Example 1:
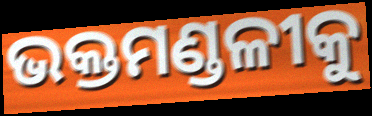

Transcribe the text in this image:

ଭକ୍ତମଣ୍ଡଳୀକୁ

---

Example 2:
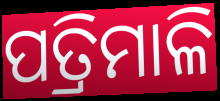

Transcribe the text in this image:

ପତ୍ରିମାଳି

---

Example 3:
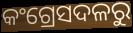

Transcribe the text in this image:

କଂଗ୍ରେସଦଳରୁ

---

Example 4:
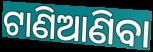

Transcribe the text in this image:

ଟାଣିଆଣିବା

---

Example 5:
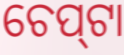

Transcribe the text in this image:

ଚେପ୍‌ଟା